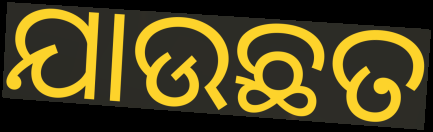
ଯାଉଛତ